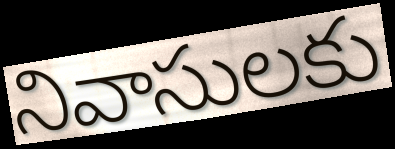
నివాసులకు